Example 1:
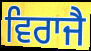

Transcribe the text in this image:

ਵਿਰਾਜੈ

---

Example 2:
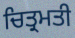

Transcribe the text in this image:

ਚਿਤ੍ਰਮਤੀ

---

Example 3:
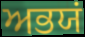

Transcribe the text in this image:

ਅਭਯਂ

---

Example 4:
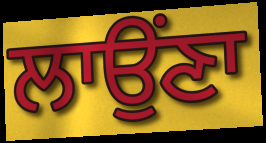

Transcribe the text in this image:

ਲਾਉਂਣਾ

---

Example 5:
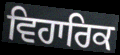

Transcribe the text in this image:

ਵਿਹਾਰਿਕ